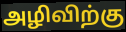
அழிவிற்கு